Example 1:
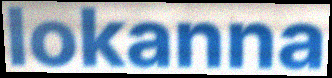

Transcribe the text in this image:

lokanna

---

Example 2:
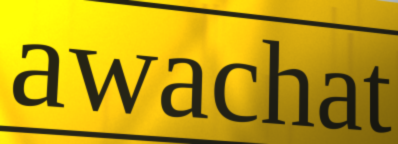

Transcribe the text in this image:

awachat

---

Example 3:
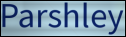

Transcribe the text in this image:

Parshley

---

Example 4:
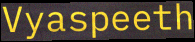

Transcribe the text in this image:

Vyaspeeth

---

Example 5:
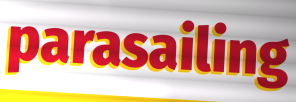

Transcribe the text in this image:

parasailing